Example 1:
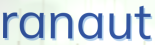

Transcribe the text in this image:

ranaut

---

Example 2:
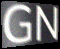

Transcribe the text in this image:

GN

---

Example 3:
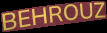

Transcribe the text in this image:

BEHROUZ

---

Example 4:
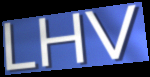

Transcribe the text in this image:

LHV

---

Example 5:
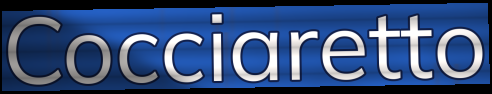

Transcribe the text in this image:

Cocciaretto